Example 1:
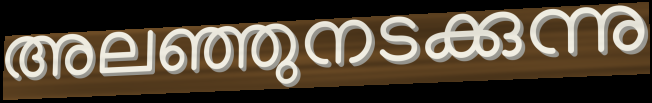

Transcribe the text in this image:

അലഞ്ഞുനടക്കുന്നു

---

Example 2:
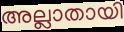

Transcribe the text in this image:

അല്ലാതായി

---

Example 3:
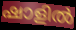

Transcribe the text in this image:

ഷാളിൽ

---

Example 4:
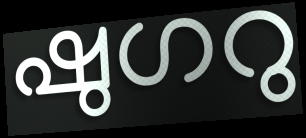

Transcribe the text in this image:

ഷുഗറു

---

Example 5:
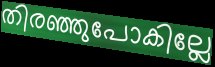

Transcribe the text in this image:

തിരഞ്ഞുപോകില്ലേ